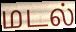
மடல்